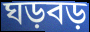
ঘড়বড়